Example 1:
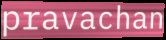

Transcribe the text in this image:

pravachan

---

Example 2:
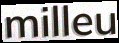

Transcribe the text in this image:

milleu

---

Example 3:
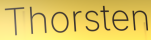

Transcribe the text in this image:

Thorsten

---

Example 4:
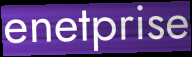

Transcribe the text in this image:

enetprise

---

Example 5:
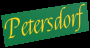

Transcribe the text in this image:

Petersdorf